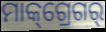
ମାକ୍‌ଗ୍ରେଗର୍